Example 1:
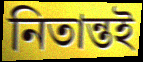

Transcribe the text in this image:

নিতান্তই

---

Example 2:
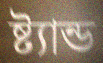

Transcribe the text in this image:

ষ্ট্যান্ড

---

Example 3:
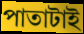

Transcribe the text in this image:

পাতাটাই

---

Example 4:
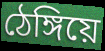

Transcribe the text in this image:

ঠেঙ্গিয়ে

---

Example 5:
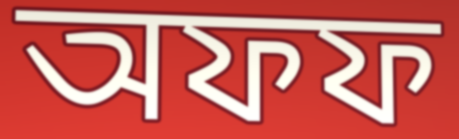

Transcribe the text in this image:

অফফ